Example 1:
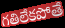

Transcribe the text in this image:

గతిలేకపోతే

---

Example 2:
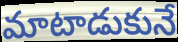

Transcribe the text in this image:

మాటాడుకునే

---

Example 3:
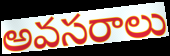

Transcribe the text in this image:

అవసరాలు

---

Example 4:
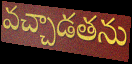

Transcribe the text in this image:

వచ్చాడతను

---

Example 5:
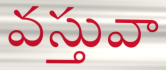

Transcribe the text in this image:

వస్తువా